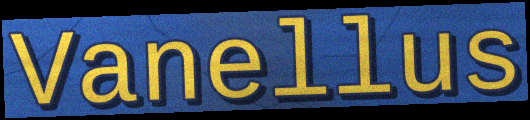
Vanellus